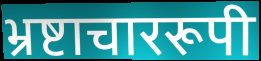
भ्रष्टाचाररूपी